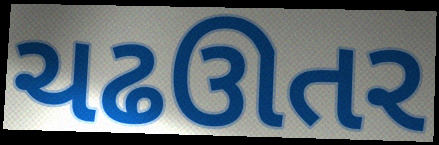
ચઢઊતર